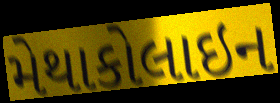
મેથાકોલાઇન